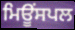
ਮਿਊਂਸਪਲ